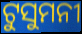
ଟୁସୁମନୀ